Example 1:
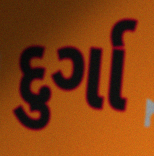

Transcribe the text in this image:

દુર્ગા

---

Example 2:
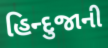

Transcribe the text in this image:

હિન્દુજાની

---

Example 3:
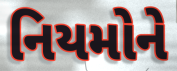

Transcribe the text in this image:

નિયમોને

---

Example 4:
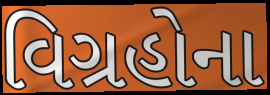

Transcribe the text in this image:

વિગ્રહોના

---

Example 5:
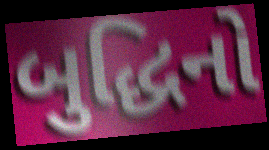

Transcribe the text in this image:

બુદ્ધિનો